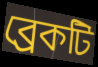
ব্রেকটি